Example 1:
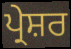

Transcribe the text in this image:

ਪ੍ਰੇਸ਼ਰ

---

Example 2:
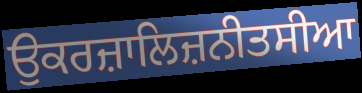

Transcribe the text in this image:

ਉਕਰਜ਼ਾਲਿਜ਼ਨੀਤਸੀਆ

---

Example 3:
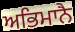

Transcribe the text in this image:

ਅਭਿਮਾਨੈ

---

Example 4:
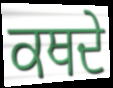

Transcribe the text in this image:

ਕਥਦੇ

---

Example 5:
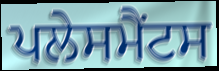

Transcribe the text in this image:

ਪਲੇਸਮੈਂਟਸ